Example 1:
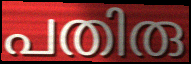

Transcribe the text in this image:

പതിരു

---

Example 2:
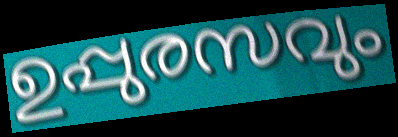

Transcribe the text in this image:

ഉപ്പുരസവും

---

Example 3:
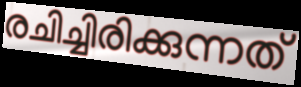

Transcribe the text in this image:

രചിച്ചിരിക്കുന്നത്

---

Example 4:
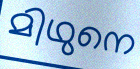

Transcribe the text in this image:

മിഥുനെ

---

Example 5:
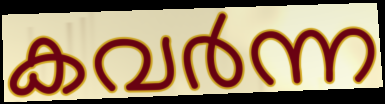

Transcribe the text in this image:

കവർന്ന